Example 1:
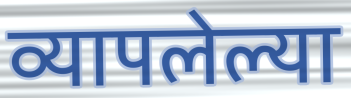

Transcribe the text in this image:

व्यापलेल्या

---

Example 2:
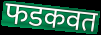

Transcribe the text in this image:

फडकवत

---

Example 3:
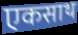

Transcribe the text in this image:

एकसाथ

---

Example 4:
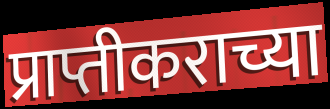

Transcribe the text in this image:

प्राप्तीकराच्या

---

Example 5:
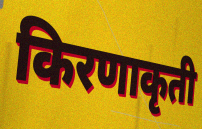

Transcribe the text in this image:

किरणाकृती